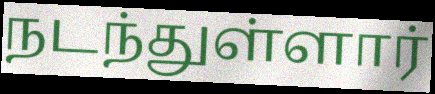
நடந்துள்ளார்